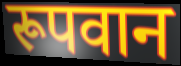
रूपवान